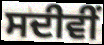
ਸਦੀਵੀਂ